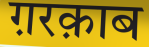
ग़रक़ाब